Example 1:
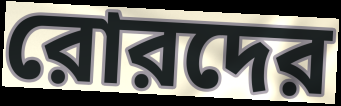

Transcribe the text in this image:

রোরদের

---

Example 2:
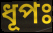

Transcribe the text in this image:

ধূপঃ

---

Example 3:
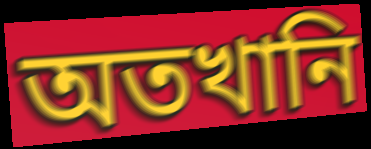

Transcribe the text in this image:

অতখানি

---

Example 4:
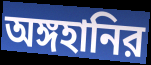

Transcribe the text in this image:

অঙ্গহানির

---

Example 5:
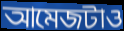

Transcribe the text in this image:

আমেজটাও